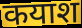
कयाश